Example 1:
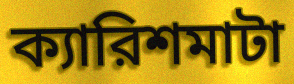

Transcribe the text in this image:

ক্যারিশমাটা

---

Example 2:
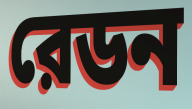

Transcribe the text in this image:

রেডন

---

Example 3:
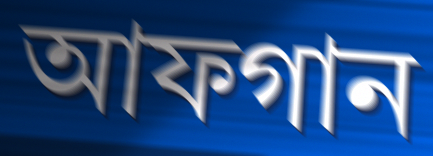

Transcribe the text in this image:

আফগান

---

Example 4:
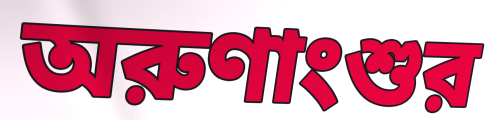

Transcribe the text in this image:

অরুণাংশুর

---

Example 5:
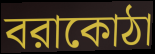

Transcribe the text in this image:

বরাকোঠা